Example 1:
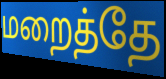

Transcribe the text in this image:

மறைத்தே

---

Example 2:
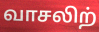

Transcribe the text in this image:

வாசலிற்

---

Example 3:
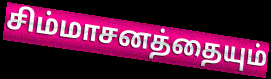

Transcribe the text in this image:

சிம்மாசனத்தையும்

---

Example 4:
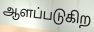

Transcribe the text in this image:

ஆளப்படுகிற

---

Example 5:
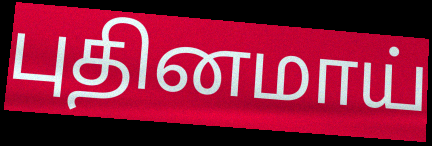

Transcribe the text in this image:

புதினமாய்